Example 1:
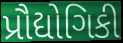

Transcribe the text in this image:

પ્રૌદ્યોગિકી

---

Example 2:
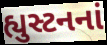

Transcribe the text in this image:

હ્યુસ્ટનનાં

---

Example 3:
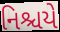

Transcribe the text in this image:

નિશ્ચયે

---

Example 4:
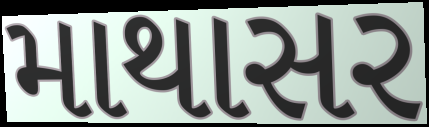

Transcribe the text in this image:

માથાસર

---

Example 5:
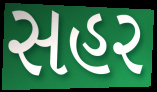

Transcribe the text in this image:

સહર